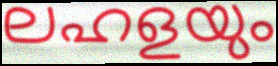
ലഹളയും